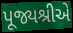
પૂજ્યશ્રીએ